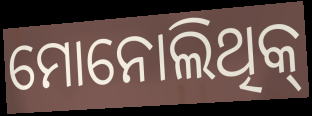
ମୋନୋଲିଥିକ୍